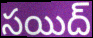
సయిద్